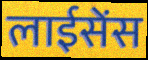
लाईसेंस